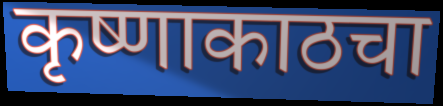
कृष्णाकाठचा